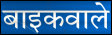
बाइकवाले